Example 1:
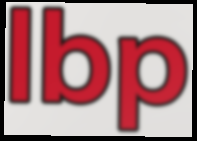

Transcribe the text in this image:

lbp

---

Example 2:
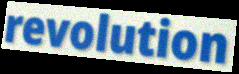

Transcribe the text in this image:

revolution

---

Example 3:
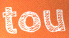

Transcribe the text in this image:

tou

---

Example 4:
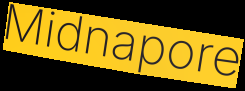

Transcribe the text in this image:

Midnapore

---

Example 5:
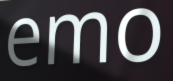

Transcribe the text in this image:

emo